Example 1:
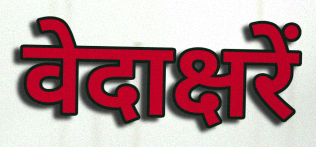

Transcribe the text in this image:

वेदाक्षरें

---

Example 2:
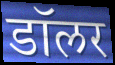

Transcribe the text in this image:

डॉलर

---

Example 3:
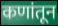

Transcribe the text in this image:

कणांतून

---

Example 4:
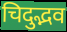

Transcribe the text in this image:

चिदुद्भव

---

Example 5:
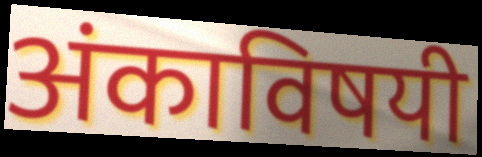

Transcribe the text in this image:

अंकाविषयी